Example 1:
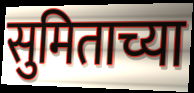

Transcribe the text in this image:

सुमिताच्या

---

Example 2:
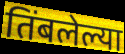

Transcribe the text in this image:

तिंबलेल्या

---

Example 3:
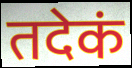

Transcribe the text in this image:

तदेकं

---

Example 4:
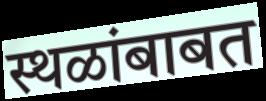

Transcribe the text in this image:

स्थळांबाबत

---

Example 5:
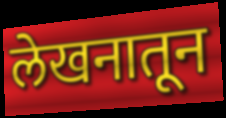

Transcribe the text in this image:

लेखनातून